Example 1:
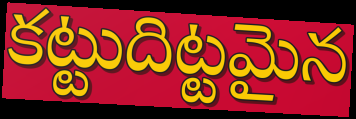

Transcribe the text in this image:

కట్టుదిట్టమైన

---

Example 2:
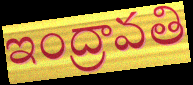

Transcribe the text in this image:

ఇంద్రావతి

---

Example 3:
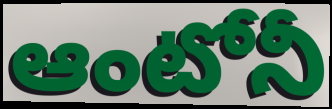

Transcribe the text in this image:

ఆంటోనీ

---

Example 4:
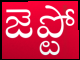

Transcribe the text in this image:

జెప్టో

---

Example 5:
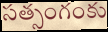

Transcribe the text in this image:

సత్సంగంకు